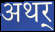
अथर्